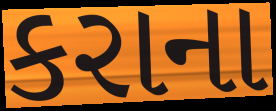
કરાના